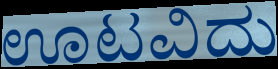
ಊಟವಿದು